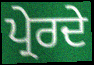
ਪ੍ਰੇਰਦੇ